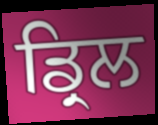
ਡ੍ਰਿਲ